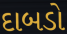
દાબડો